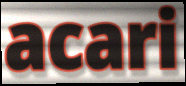
acari